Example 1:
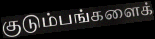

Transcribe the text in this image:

குடும்பங்களைக்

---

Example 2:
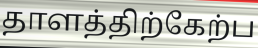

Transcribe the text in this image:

தாளத்திற்கேற்ப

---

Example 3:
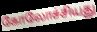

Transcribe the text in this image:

கோலோச்சியது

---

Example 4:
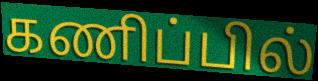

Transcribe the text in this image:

கணிப்பில்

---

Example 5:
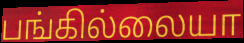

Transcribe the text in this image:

பங்கில்லையா